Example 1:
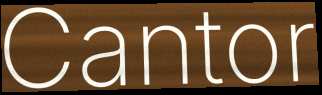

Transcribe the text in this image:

Cantor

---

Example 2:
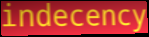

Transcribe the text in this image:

indecency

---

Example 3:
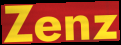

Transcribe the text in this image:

Zenz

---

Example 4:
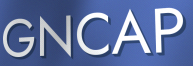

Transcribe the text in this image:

GNCAP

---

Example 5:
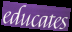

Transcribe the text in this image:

educates